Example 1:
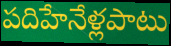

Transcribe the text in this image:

పదిహేనేళ్లపాటు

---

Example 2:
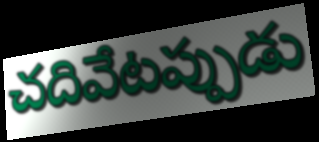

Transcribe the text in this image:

చదివేటప్పుడు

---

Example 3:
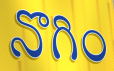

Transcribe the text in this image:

నొగిం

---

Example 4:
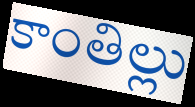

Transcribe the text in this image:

కాంతిల్లు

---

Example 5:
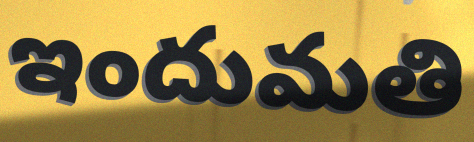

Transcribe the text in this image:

ఇందుమతి